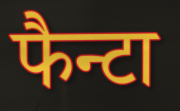
फैन्टा